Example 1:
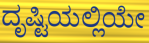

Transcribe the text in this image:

ದೃಷ್ಟಿಯಲ್ಲಿಯೇ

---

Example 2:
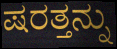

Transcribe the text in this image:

ಷರತ್ತನ್ನು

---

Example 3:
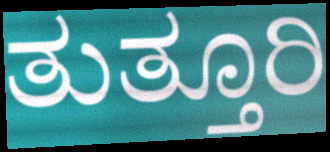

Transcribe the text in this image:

ತುತ್ತೂರಿ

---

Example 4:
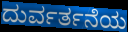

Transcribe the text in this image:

ದುರ್ವರ್ತನೆಯ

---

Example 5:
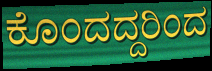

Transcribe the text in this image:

ಕೊಂದದ್ದರಿಂದ